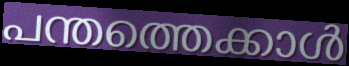
പന്തത്തെക്കാൾ